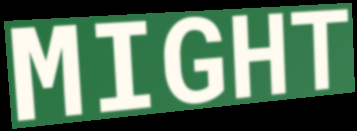
MIGHT